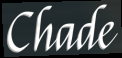
Chade